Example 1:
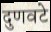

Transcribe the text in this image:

दुणवटे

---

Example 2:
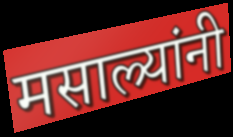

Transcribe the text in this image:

मसाल्यांनी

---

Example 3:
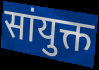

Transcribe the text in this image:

सांयुक्त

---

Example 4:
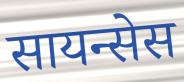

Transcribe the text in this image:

सायन्सेस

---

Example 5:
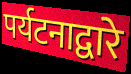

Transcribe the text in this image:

पर्यटनाद्वारे